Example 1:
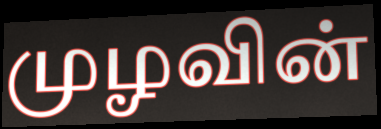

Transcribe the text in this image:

முழவின்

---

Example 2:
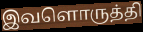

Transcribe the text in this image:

இவளொருத்தி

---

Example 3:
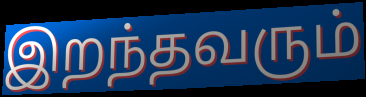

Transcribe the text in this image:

இறந்தவரும்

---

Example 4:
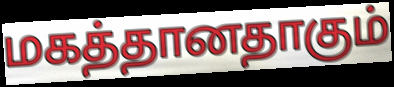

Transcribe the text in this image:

மகத்தானதாகும்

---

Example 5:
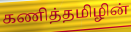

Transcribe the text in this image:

கணித்தமிழின்